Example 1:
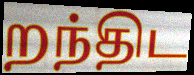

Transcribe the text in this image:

றந்திட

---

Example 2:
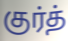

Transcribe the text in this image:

குர்த்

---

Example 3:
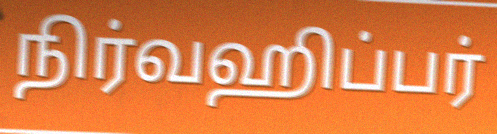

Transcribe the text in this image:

நிர்வஹிப்பர்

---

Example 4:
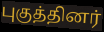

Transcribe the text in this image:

புகுத்தினர்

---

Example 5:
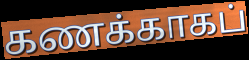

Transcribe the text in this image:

கணக்காகப்